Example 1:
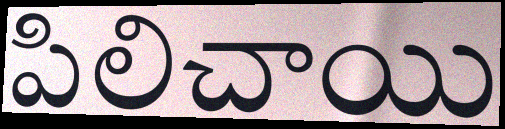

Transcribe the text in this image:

పిలిచాయి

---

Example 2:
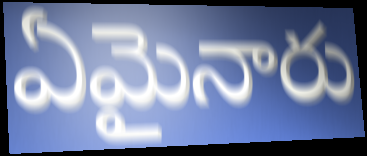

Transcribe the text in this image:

ఏమైనారు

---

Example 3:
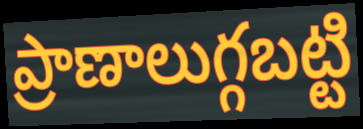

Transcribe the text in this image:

ప్రాణాలుగ్గబట్టి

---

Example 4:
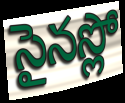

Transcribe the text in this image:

సైనస్లో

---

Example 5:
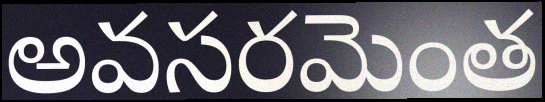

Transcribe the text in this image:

అవసరమెంత